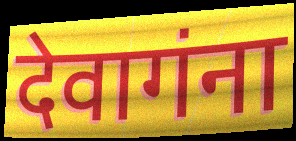
देवागंना